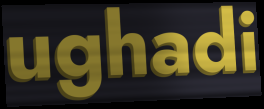
ughadi